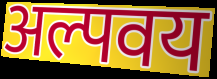
अल्पवय